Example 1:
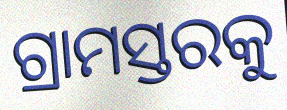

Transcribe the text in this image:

ଗ୍ରାମସ୍ତରକୁ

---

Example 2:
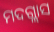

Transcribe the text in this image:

ମଦଗ୍ଲାସ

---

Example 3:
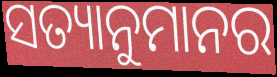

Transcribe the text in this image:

ସତ୍ୟାନୁମାନର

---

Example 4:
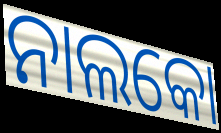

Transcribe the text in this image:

ନାଲକୋ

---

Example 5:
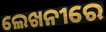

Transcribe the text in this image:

ଲେଖନୀରେ